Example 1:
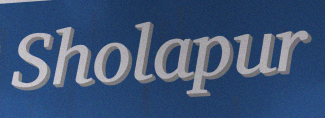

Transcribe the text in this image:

Sholapur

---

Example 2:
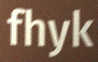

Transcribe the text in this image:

fhyk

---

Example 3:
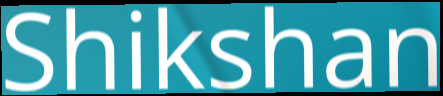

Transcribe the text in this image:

Shikshan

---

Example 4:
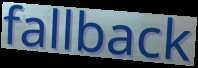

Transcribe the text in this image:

fallback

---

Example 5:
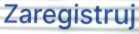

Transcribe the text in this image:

Zaregistruj